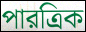
পারত্রিক